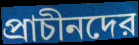
প্রাচীনদের